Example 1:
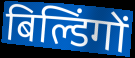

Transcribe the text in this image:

बिल्डिंगों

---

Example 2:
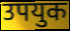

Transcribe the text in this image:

उपयुक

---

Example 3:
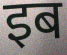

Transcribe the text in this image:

इब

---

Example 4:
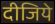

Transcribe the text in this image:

दीजिये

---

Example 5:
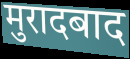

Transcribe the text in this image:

मुरादबाद